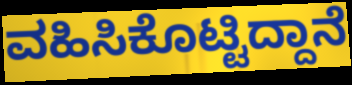
ವಹಿಸಿಕೊಟ್ಟಿದ್ದಾನೆ